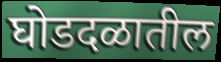
घोडदळातील